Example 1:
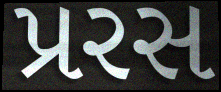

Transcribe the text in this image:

પ્રરસ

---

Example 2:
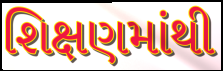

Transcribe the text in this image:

શિક્ષણમાંથી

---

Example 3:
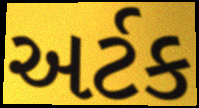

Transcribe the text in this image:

અર્ટક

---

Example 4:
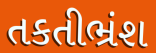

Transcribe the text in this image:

તકતીભ્રંશ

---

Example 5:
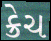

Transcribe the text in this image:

ક્રેચ